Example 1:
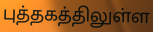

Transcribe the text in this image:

புத்தகத்திலுள்ள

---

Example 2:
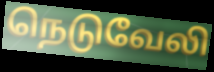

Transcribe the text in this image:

நெடுவேலி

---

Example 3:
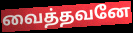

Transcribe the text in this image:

வைத்தவனே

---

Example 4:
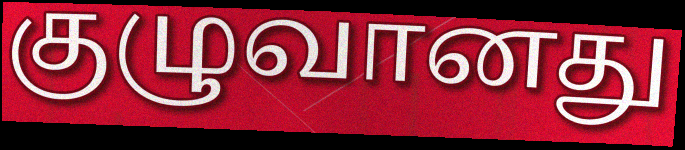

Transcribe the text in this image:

குழுவானது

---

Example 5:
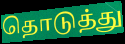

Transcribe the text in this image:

தொடுத்து